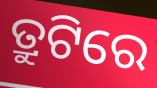
ତ୍ରୁଟିରେ